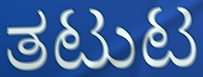
ತಟುಟ